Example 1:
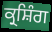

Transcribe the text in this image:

ਕ੍ਰਸ਼ਿੰਗ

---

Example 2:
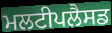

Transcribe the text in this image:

ਮਲਟੀਪਲੈਸਡ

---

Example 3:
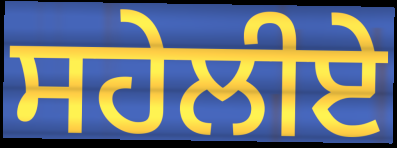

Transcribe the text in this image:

ਸਹੇਲੀਏ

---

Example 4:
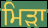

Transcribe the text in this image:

ਮਿੜਾ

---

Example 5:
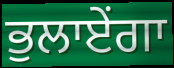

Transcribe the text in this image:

ਭੁਲਾਏਂਗਾ